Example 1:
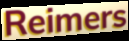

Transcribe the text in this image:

Reimers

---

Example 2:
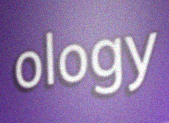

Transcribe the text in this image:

ology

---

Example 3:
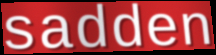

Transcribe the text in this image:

sadden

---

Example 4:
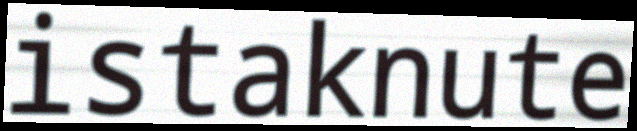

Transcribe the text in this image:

istaknute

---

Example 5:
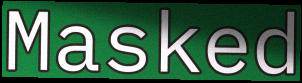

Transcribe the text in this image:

Masked